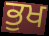
ਭੁਖ